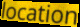
location